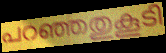
പറഞ്ഞതുകൂടി